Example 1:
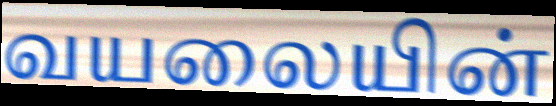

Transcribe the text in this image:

வயலையின்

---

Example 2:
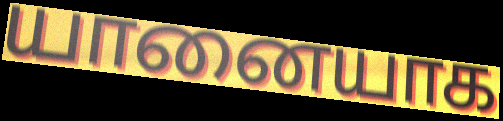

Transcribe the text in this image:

யானையாக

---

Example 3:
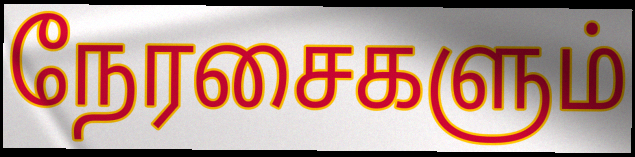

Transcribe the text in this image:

நேரசைகளும்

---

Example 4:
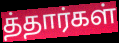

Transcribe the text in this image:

த்தார்கள்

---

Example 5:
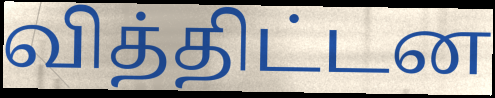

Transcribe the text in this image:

வித்திட்டன